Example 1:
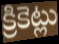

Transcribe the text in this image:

క్రికెట్లు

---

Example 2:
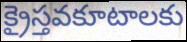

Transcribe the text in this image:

క్రైస్తవకూటాలకు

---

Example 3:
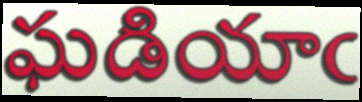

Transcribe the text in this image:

ఘడియాఁ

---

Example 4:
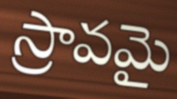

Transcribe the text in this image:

స్రావమై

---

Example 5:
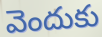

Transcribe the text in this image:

వెందుకు